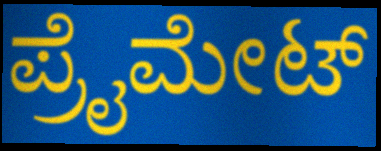
ಪ್ರೈಮೇಟ್